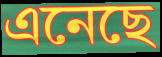
এনেছে